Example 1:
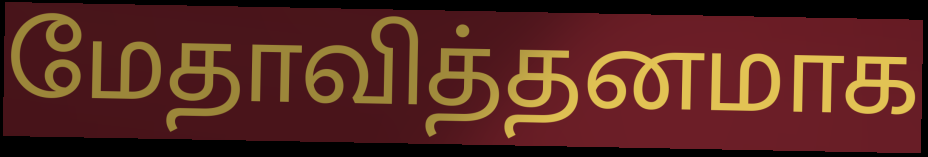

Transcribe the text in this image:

மேதாவித்தனமாக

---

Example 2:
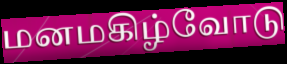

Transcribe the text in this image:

மனமகிழ்வோடு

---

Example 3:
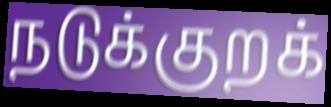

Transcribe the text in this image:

நடுக்குறக்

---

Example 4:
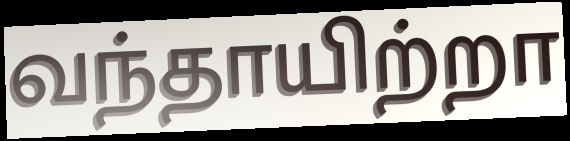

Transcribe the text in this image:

வந்தாயிற்றா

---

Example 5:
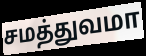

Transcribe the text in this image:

சமத்துவமா